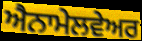
ਐਨਾਮੇਲਵੇਅਰ